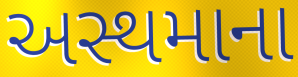
અસ્થમાના